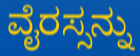
ವೈರಸ್ಸನ್ನು